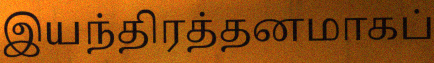
இயந்திரத்தனமாகப்